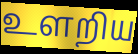
உளறிய